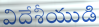
విదేశీయుడి